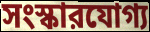
সংস্কারযোগ্য